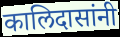
कालिदासांनी